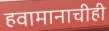
हवामानाचीही